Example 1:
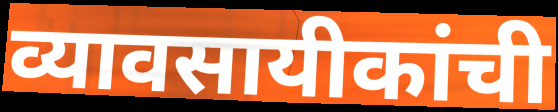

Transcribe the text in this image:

व्यावसायीकांची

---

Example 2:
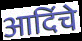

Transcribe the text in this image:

आदिंचे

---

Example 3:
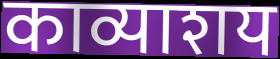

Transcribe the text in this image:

काव्याशय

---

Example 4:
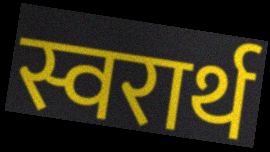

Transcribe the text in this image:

स्वरार्थ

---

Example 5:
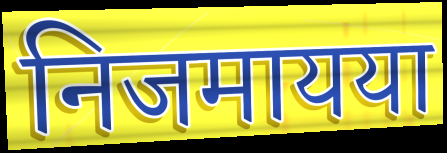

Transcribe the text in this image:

निजमायया